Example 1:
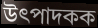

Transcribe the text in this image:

উৎপাদকক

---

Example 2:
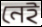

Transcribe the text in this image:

নেই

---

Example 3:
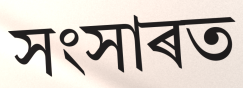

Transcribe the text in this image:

সংসাৰত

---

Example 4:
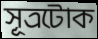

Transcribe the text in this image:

সূত্ৰটোক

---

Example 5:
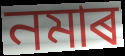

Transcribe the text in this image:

নমাৰ